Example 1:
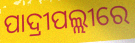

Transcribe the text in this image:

ପାଦ୍ରୀପଲ୍ଲୀରେ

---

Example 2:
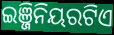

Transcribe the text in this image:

ଇଞ୍ଜିନିୟରଟିଏ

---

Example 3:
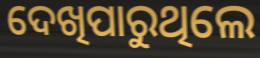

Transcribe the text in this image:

ଦେଖିପାରୁଥିଲେ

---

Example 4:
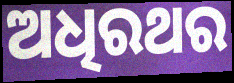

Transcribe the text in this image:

ଅଧିରଥର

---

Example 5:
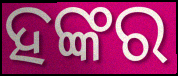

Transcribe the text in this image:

ହଙ୍କର